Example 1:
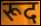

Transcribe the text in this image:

रूद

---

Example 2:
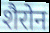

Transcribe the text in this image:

शैरोन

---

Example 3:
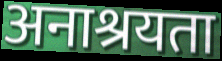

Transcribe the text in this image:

अनाश्रयता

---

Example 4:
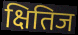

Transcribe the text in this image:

क्षितिज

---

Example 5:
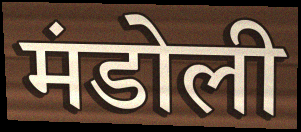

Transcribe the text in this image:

मंडोली